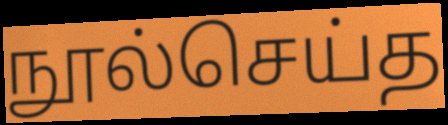
நூல்செய்த